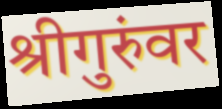
श्रीगुरुंवर